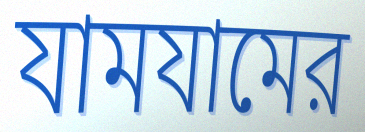
যামযামের